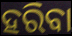
ହରିବା